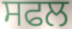
ਸਫਲ